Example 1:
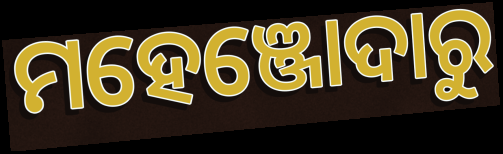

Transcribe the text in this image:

ମହେଞ୍ଜୋଦାରୁ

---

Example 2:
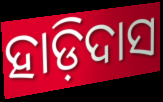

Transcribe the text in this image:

ହାଡ଼ିଦାସ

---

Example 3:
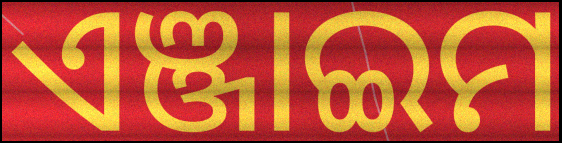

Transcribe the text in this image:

ଏଞ୍ଜାଇମ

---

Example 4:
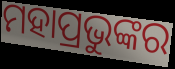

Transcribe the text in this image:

ମହାପ୍ରଭୁଙ୍କର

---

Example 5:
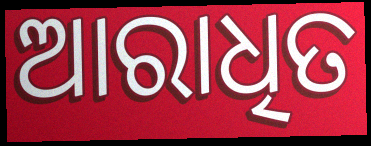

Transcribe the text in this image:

ଆରାଧିତ